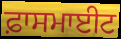
ਫ਼ਾਸਮਾਈਟ